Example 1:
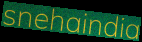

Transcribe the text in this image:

snehaindia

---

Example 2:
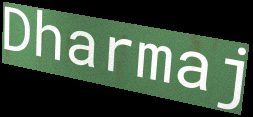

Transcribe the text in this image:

Dharmaj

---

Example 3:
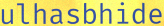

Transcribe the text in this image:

ulhasbhide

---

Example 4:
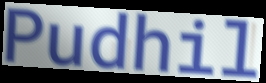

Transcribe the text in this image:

Pudhil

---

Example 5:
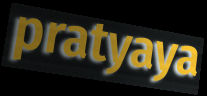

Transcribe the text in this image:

pratyaya